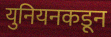
युनियनकडून